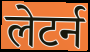
लेटर्न